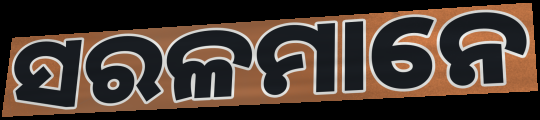
ସରଳମାନେ